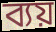
ব্যয়